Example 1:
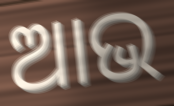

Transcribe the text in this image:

ଆଭ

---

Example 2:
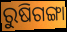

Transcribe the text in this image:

ରୁଷିଗଙ୍ଗା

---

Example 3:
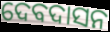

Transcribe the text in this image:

ଦେବଦାସନ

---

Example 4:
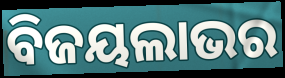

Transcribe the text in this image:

ବିଜୟଲାଭର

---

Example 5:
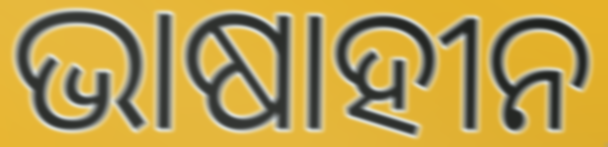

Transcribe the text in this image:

ଭାଷାହୀନ